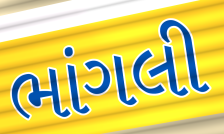
ભાંગલી